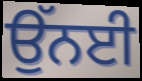
ਉੱਨਈ